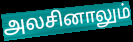
அலசினாலும்